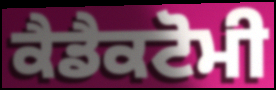
ਕੈਡੈਕਟੋਮੀ